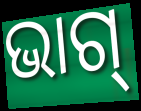
ଭାଗ୍